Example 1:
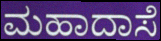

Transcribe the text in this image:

ಮಹಾದಾಸೆ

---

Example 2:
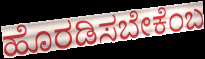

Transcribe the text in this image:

ಹೊರಡಿಸಬೇಕೆಂಬ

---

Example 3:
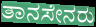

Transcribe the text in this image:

ತಾನಸೇನರು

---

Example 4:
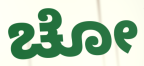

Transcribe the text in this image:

ಚೋ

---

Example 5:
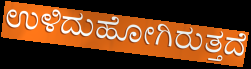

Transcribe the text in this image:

ಉಳಿದುಹೋಗಿರುತ್ತದೆ